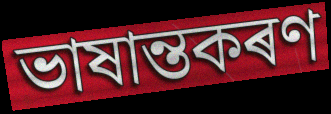
ভাষান্তকৰণ